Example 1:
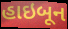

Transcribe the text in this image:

હાઇબૂન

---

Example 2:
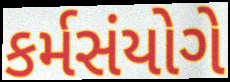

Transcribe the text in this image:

કર્મસંયોગે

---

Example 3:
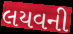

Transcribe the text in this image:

લયવની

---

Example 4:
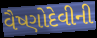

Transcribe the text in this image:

વૈષ્ણોદેવીની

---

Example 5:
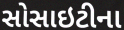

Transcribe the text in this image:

સોસાઇટીના